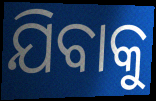
ଯିବାକୁ